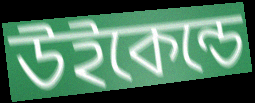
উইকেন্ডে